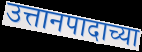
उत्तानपादाच्या